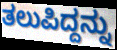
ತಲುಪಿದ್ದನ್ನು